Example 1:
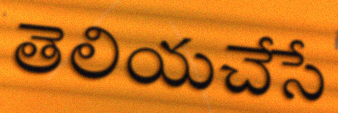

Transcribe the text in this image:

తెలియచేసే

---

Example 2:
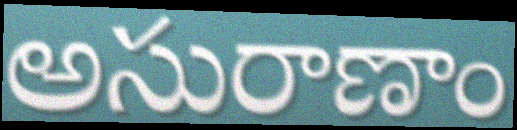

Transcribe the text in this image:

అసురాణాం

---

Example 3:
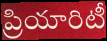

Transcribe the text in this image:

ప్రియారిటీ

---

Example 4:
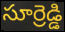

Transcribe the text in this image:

సూర్రెడ్డి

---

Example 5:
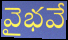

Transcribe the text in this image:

వైభవే